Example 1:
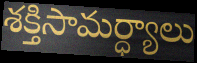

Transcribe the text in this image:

శక్తిసామర్ధ్యాలు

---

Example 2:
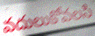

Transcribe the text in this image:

వదులుకోవలసి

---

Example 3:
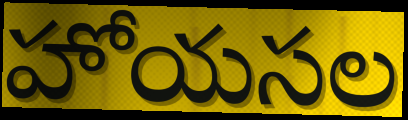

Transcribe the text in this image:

హోయసల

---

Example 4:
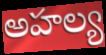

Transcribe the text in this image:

అహల్య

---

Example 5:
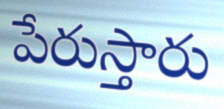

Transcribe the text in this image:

పేరుస్తారు